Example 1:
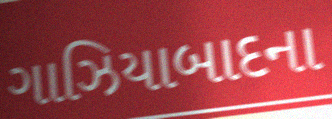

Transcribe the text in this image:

ગાઝિયાબાદના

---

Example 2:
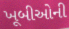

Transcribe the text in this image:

ખૂબીઓની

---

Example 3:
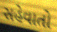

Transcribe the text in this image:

સહેવાતો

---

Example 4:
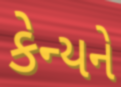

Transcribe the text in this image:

કેન્યને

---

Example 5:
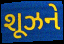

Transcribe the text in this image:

શૂઝને